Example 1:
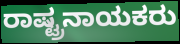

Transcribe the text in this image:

ರಾಷ್ಟ್ರನಾಯಕರು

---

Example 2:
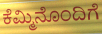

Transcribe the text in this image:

ಕೆಮ್ಮಿನೊಂದಿಗೆ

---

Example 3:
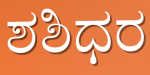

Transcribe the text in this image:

ಶಶಿಧರ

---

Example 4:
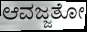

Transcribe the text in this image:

ಆವಜ್ಜತೋ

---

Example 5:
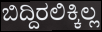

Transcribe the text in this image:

ಬಿದ್ದಿರಲಿಕ್ಕಿಲ್ಲ